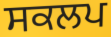
ਸਕਲਪ